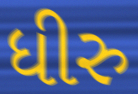
ધીરુ